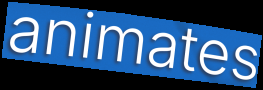
animates